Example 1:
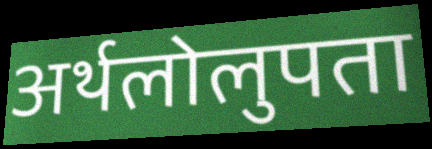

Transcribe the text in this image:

अर्थलोलुपता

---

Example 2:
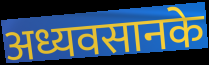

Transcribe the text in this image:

अध्यवसानके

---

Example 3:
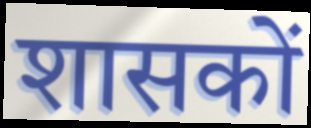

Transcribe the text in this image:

शासकों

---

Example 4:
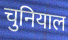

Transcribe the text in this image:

चुनियाल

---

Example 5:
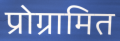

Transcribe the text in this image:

प्रोग्रामित